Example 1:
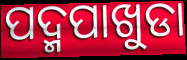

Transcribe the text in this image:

ପଦ୍ମପାଖୁଡା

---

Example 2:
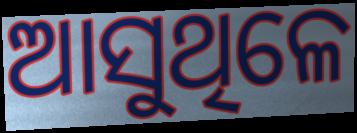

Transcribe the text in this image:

ଆସୁଥିଳେ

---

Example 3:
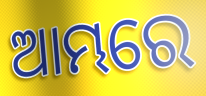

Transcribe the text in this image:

ଆମ୍ଭରେ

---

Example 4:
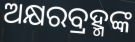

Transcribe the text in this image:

ଅକ୍ଷରବ୍ରହ୍ମଙ୍କ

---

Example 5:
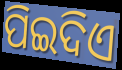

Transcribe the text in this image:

ପିଇଦିଏ